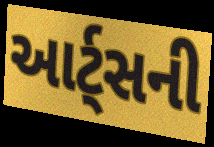
આર્ટ્સની